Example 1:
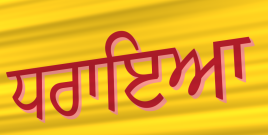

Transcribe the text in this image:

ਧਰਾਇਆ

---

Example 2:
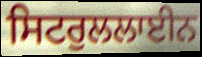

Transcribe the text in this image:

ਸਿਟਰੁਲਲਾਈਨ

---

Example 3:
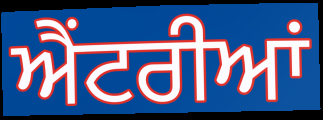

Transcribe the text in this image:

ਐਂਟਰੀਆਂ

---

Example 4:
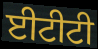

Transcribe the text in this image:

ਈਟੀਟੀ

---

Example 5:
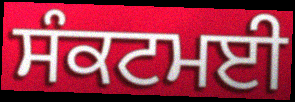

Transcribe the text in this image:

ਸੰਕਟਮਈ